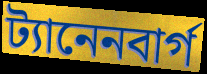
ট্যানেনবার্গ